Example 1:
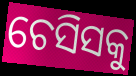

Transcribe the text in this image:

ଚେସିସକୁ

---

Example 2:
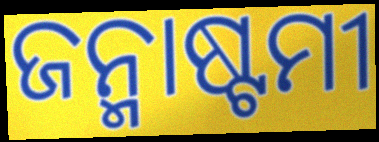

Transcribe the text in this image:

ଜନ୍ମାଷ୍ଟମୀ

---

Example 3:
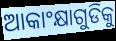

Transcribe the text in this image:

ଆକାଂକ୍ଷାଗୁଡିକୁ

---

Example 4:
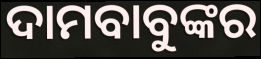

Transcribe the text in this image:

ଦାମବାବୁଙ୍କର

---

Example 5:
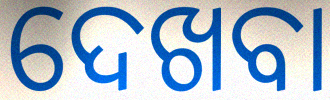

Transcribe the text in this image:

ଦେଖବା